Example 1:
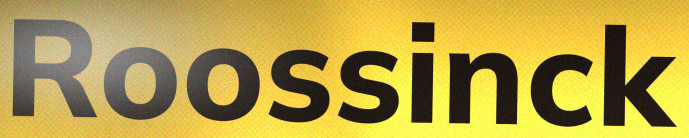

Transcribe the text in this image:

Roossinck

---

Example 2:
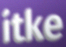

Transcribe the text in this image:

itke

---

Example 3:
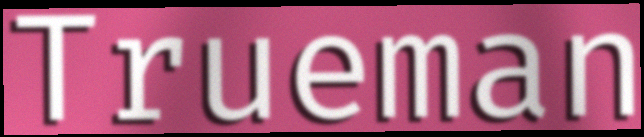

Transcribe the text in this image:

Trueman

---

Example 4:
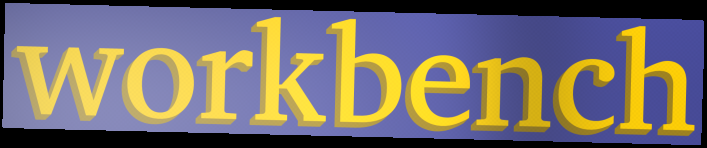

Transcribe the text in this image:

workbench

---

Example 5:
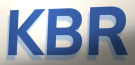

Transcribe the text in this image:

KBR